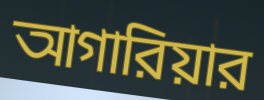
আগারিয়ার